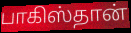
பாகிஸ்தான்